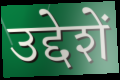
उद्देशें